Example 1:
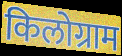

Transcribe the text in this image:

किलोग्राम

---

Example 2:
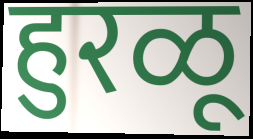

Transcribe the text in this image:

हुरळू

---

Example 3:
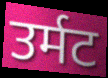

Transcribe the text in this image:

उर्मट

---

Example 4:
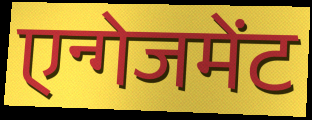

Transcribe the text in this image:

एन्गेजमेंट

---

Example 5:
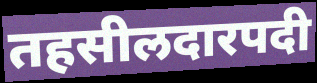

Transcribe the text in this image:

तहसीलदारपदी